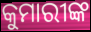
କୁମାରୀଙ୍କ